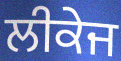
ਲੀਕੇਜ